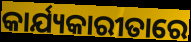
କାର୍ଯ୍ୟକାରୀତାରେ